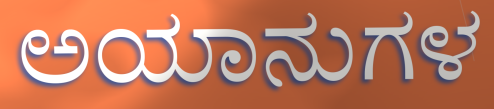
ಅಯಾನುಗಳ